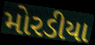
મોરડીયા